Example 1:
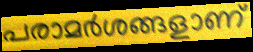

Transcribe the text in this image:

പരാമർശങ്ങളാണ്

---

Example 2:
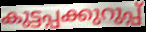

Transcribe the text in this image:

കുട്ടപ്പക്കുറുപ്പ്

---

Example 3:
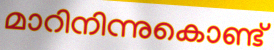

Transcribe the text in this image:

മാറിനിന്നുകൊണ്ട്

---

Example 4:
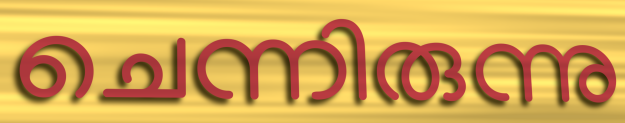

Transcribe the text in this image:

ചെന്നിരുന്നു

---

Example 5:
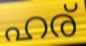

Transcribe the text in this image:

ഹര്